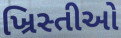
ખ્રિસ્તીઓ